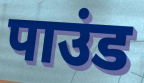
पाउंड